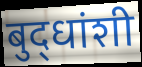
बुद्धांशी